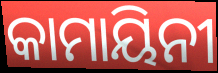
କାମାୟିନୀ